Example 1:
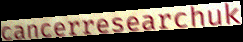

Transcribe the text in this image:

cancerresearchuk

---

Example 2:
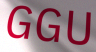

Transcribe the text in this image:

GGU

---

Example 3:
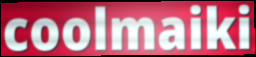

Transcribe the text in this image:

coolmaiki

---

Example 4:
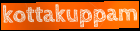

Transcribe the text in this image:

kottakuppam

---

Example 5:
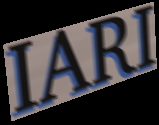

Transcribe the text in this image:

IARI